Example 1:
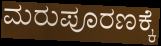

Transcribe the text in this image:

ಮರುಪೂರಣಕ್ಕೆ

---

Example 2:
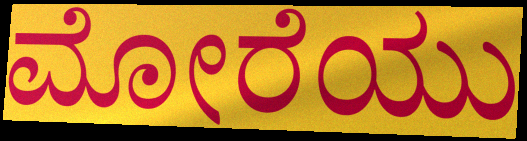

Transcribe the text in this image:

ಮೋರೆಯು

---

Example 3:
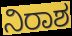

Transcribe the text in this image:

ನಿರಾಶ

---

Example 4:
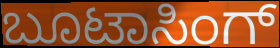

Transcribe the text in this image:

ಬೂಟಾಸಿಂಗ್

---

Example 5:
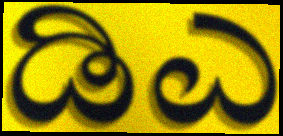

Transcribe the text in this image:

ಡಿಎ